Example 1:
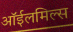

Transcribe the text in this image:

ऑईलमिल्स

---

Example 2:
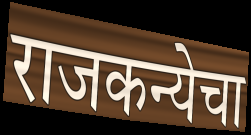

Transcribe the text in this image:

राजकन्येचा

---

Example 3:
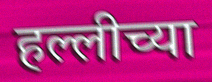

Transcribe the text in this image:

हल्लीच्या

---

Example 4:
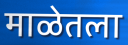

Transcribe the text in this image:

माळेतला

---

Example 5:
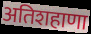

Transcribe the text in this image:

अतिशहाणा